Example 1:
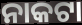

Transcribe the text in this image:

ନାକଟା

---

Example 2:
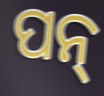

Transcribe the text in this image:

ପନ୍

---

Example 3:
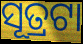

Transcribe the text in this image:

ସୂତ୍ରଟା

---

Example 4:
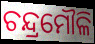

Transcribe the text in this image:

ଚନ୍ଦ୍ରମୌଳି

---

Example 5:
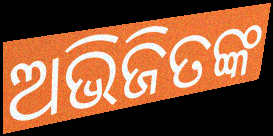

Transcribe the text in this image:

ଅଭିଜିତଙ୍କ